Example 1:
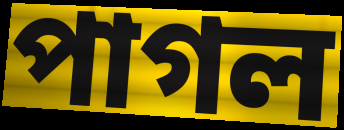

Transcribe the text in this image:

পাগল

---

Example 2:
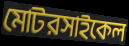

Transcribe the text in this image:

মোটরসাইকেল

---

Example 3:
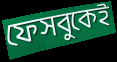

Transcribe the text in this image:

ফেসবুকেই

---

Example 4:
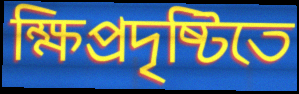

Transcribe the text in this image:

ক্ষিপ্রদৃষ্টিতে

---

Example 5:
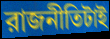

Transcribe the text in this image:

রাজনীতিটাই